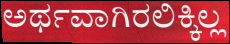
ಅರ್ಥವಾಗಿರಲಿಕ್ಕಿಲ್ಲ